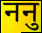
ननु